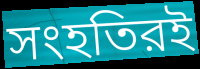
সংহতিরই